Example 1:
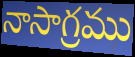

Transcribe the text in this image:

నాసాగ్రము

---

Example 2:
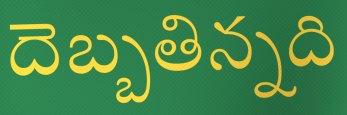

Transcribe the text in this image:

దెబ్బతిన్నది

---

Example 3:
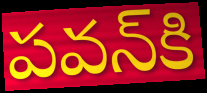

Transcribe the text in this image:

పవన్‌కి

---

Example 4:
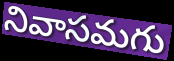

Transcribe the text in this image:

నివాసమగు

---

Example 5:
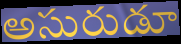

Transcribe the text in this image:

అసురుడూ